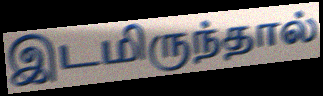
இடமிருந்தால்